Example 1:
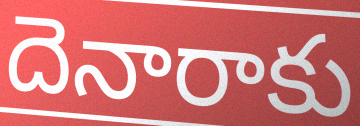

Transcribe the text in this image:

దెనారాకు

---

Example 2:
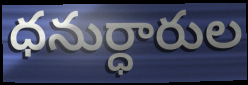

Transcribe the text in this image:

ధనుర్ధారుల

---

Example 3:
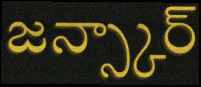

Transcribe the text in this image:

జన్స్కార్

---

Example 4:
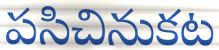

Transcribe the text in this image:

పసిచినుకట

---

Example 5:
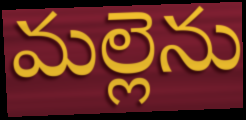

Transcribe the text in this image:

మల్లెను